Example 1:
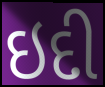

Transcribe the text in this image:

ઇદી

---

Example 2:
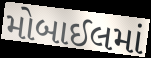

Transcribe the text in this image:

મોબાઈલમાં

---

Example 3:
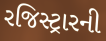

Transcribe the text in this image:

રજિસ્ટ્રારની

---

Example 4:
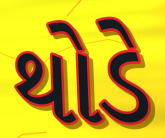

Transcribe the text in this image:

થોડે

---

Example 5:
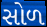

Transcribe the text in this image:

સોળ